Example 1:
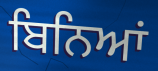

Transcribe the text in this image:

ਬਿਨਿਆਂ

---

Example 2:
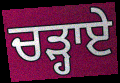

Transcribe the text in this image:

ਚੜ੍ਹਾਏ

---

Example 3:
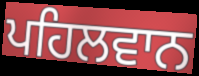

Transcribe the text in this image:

ਪਹਿਲਵਾਨ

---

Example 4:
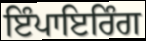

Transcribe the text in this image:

ਇੰਪਾਇਰਿੰਗ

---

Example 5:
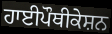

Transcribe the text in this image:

ਹਾਈਪੌਥੀਕੇਸ਼ਨ